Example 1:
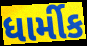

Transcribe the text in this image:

ધાર્મીક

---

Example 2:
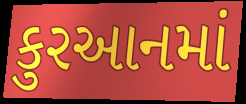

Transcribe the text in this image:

કુરઆનમાં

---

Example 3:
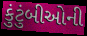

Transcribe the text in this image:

કુંટુંબીઓની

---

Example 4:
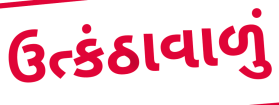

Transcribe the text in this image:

ઉત્કંઠાવાળું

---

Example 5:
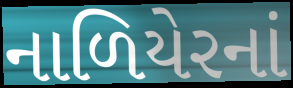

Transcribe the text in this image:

નાળિયેરનાં